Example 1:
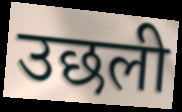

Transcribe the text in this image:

उछली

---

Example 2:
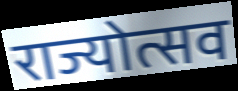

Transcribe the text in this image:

राज्योत्सव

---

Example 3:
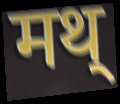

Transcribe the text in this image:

मथ्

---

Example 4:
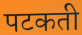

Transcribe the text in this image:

पटकती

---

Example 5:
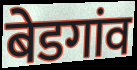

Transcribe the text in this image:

बेडगांव